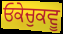
ਓਕੇਚੁਕਵੂ